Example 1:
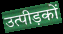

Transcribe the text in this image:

उत्पीड़कों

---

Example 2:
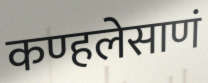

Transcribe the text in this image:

कण्हलेसाणं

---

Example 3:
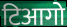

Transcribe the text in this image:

टिआगो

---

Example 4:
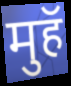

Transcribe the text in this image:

मुहॅ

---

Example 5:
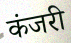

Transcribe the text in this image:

कंजरी